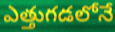
ఎత్తుగడలోనే